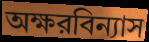
অক্ষরবিন্যাস